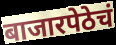
बाजारपेठेचं